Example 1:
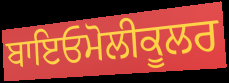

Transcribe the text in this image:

ਬਾਇਓਮੋਲੀਕੂਲਰ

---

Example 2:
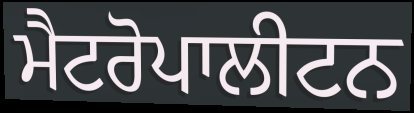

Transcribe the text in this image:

ਮੈਟਰੋਪਾਲੀਟਨ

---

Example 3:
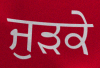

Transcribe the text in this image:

ਜੁੜਕੇ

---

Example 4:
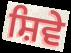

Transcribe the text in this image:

ਸ਼ਿਵੇ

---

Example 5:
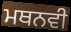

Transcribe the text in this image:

ਮਥਨਵੀ